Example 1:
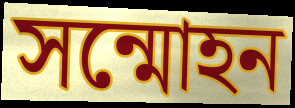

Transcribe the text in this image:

সন্মোহন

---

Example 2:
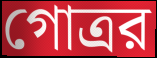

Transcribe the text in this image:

গোত্রর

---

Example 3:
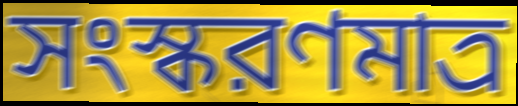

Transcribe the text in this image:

সংস্করণমাত্র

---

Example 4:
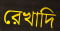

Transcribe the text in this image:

রেখাদি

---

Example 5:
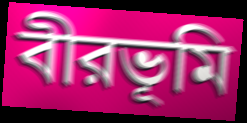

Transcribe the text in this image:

বীরভূমি